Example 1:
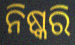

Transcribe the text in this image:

ନିଷ୍କରି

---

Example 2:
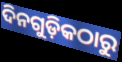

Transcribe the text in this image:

ଦିନଗୁଡ଼ିକଠାରୁ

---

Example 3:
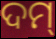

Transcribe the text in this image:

ଦମ୍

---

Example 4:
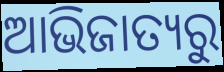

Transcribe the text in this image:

ଆଭିଜାତ୍ୟରୁ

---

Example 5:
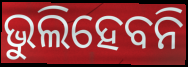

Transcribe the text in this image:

ଭୁଲିହେବନି